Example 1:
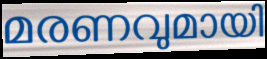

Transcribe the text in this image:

മരണവുമായി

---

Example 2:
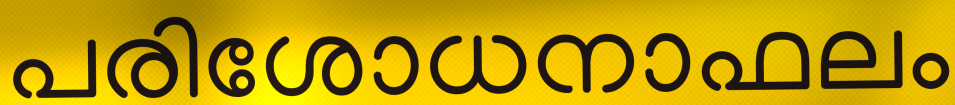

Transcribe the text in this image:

പരിശോധനാഫലം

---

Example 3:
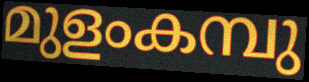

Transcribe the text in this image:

മുളംകമ്പു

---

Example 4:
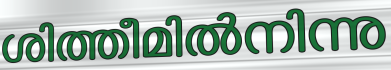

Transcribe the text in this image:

ശിത്തീമിൽനിന്നു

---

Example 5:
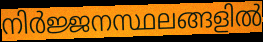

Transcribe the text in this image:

നിർജ്ജനസ്ഥലങ്ങളിൽ